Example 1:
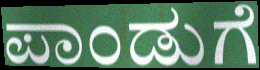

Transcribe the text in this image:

ಪಾಂಡುಗೆ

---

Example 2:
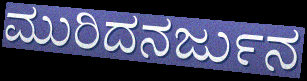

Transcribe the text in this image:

ಮುರಿದನರ್ಜುನ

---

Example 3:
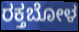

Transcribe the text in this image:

ರಕ್ತಬೋಳ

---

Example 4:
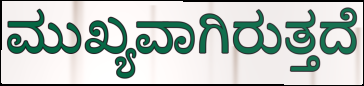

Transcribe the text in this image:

ಮುಖ್ಯವಾಗಿರುತ್ತದೆ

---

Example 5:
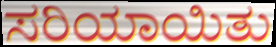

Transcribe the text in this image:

ಸರಿಯಾಯಿತು